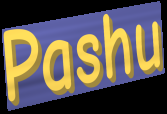
Pashu